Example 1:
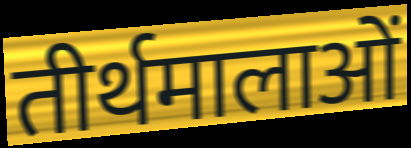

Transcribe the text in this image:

तीर्थमालाओं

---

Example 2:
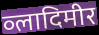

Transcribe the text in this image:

व्‍लादिमीर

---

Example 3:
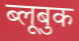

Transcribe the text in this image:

ब्लूबुक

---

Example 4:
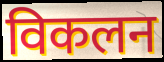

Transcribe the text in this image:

विकलन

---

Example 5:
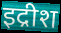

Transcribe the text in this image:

इद्रीश